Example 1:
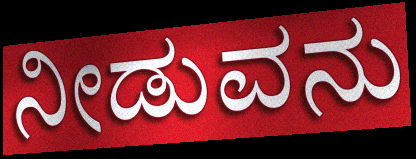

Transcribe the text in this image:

ನೀಡುವನು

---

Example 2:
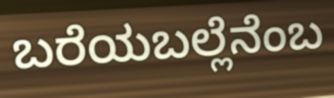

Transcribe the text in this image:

ಬರೆಯಬಲ್ಲೆನೆಂಬ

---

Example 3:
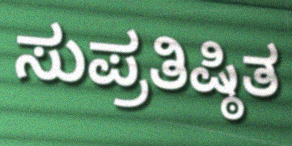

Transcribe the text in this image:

ಸುಪ್ರತಿಷ್ಠಿತ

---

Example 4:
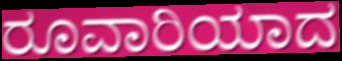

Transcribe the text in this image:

ರೂವಾರಿಯಾದ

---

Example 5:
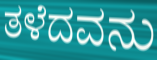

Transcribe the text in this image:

ತಳೆದವನು